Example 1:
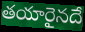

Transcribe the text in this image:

తయారైనదే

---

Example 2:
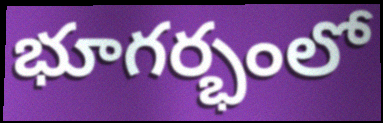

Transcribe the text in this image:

భూగర్భంలో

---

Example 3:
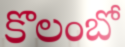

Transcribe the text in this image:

కొలంబో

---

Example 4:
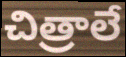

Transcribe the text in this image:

చిత్రాలే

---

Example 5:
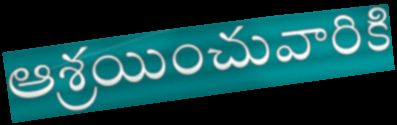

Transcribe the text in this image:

ఆశ్రయించువారికి